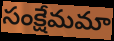
సంక్షేమమా